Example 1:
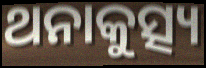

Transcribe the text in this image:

ଥନାକୁତ୍ସ୍ୟ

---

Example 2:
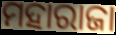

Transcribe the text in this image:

ମହାରାଜା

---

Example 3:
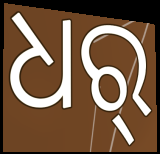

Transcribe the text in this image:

ଧର୍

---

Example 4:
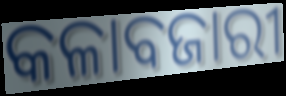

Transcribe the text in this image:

କଳାବଜାରୀ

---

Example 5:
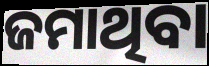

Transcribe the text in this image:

ଜମାଥିବା